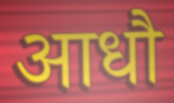
आधौ